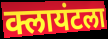
क्लायंटला